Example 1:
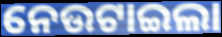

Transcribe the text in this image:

ନେଉଟାଇଲା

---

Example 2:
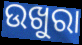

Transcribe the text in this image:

ଉଖୁରା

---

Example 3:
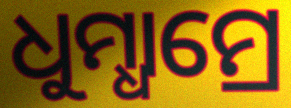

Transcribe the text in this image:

ଧୁମ୍ଧାମ୍ରେ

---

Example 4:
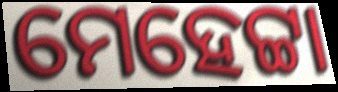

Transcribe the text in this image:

ମେହେଟ୍ଟା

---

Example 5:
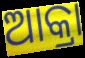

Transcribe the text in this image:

ଆକ୍ରା